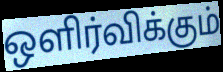
ஒளிர்விக்கும்